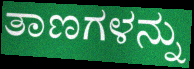
ತಾಣಗಳನ್ನು